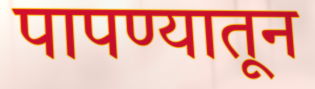
पापण्यातून